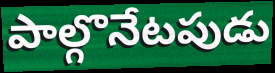
పాల్గొనేటపుడు